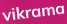
vikrama